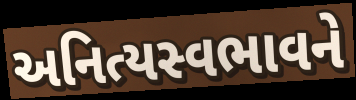
અનિત્યસ્વભાવને